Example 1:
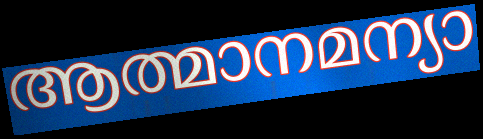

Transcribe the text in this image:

ആത്മാനമന്യാ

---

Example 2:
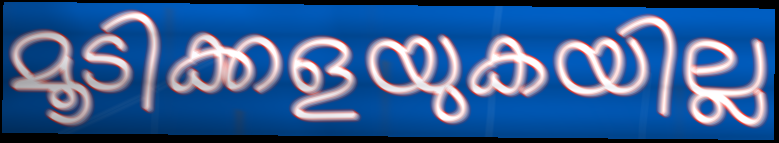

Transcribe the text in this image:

മൂടിക്കളയുകയില്ല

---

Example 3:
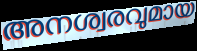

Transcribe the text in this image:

അനശ്വരവുമായ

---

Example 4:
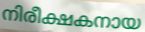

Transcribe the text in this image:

നിരീക്ഷകനായ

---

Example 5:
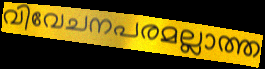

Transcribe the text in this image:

വിവേചനപരമല്ലാത്ത